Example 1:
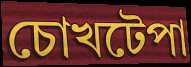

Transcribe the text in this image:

চোখটেপা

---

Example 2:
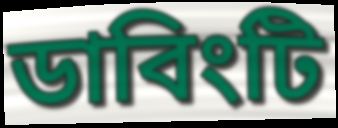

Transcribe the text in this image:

ডাবিংটি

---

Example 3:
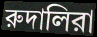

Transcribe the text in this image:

রুদালিরা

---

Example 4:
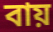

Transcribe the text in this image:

বায়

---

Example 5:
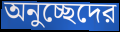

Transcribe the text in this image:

অনুচ্ছেদের